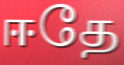
ஈதே